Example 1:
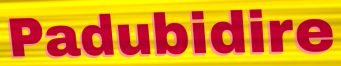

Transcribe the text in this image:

Padubidire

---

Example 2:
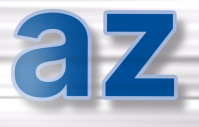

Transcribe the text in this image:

az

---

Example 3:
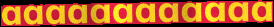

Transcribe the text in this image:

aaaaaaaaaaaa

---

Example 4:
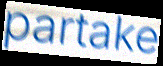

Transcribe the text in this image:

partake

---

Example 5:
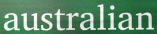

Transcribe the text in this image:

australian